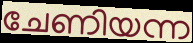
ചേണിയന്ന